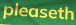
pleaseth